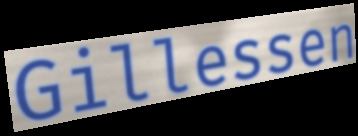
Gillessen